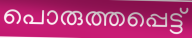
പൊരുത്തപ്പെട്ട്